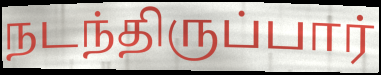
நடந்திருப்பார்